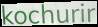
kochurir